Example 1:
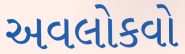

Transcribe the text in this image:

અવલોકવો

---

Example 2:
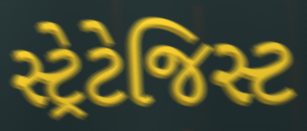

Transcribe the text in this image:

સ્ટ્રેટેજિસ્ટ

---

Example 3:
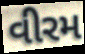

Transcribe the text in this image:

વીરમ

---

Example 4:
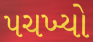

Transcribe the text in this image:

પચખ્યો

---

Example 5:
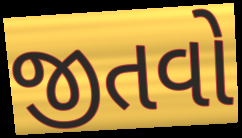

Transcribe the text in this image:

જીતવો